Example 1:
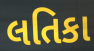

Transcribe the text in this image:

લતિકા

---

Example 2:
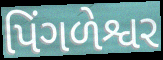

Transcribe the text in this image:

પિંગળેશ્વર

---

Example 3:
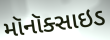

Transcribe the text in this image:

મૉનૉક્સાઇડ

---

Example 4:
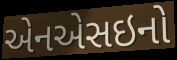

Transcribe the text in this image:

એનએસઇનો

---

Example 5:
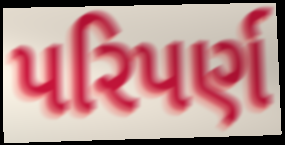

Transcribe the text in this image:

પરિપર્ણ